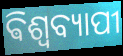
ଵିଶ୍ୱବ୍ୟାପୀ